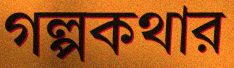
গল্পকথার